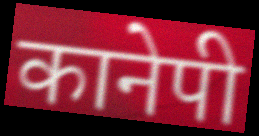
कानेपी